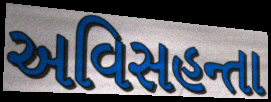
અવિસહન્તા